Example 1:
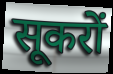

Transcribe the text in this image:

सूकरों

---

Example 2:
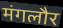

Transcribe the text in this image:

मंगलौर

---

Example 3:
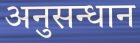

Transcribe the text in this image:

अनुसन्धान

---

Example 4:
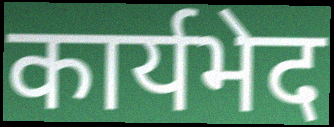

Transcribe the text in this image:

कार्यभेद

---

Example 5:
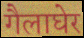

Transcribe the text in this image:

गैलाघेर